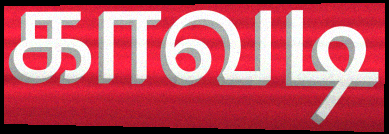
காவடி